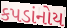
કપડાંનોય